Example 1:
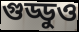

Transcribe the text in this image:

গুড্ডুও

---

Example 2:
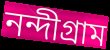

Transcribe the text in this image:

নন্দীগ্রাম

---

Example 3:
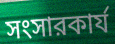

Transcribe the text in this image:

সংসারকার্য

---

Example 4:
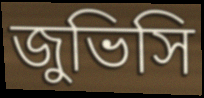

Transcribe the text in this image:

জুভিসি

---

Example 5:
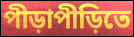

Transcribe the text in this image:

পীড়াপীড়িতে